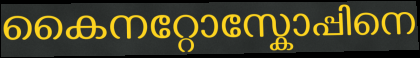
കൈനറ്റോസ്കോപ്പിനെ